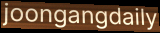
joongangdaily